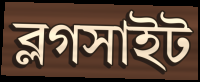
ব্লগসাইট